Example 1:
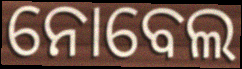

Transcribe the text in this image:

ନୋବେଲ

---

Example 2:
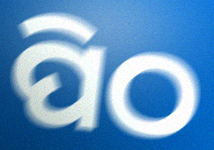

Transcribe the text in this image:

ପିଠ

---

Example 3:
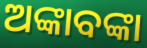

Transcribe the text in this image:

ଅଙ୍କାବଙ୍କା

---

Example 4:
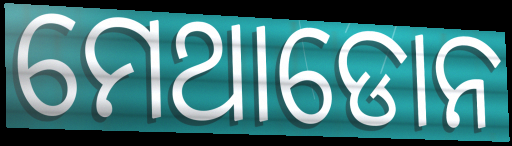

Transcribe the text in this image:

ମେଥାଡୋନ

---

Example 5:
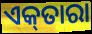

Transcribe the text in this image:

ଏକ୍‌ତାରା